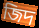
জিদ